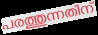
പരത്തുന്നതിന്